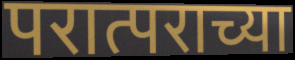
परात्पराच्या